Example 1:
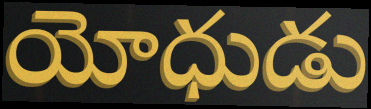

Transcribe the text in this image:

యోధుడు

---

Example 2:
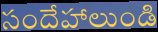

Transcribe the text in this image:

సందేహాలుండి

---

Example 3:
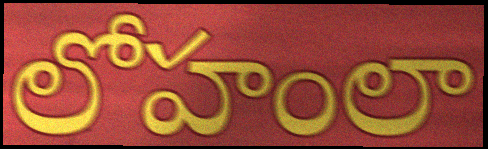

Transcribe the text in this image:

లోహంలా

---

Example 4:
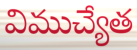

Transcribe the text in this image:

విముచ్యేత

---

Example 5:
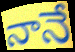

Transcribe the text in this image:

నానే